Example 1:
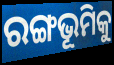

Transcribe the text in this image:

ରଙ୍ଗଭୂମିକୁ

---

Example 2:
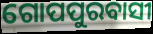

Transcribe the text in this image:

ଗୋପପୁରବାସୀ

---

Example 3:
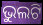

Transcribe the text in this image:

ଭୁଲଟି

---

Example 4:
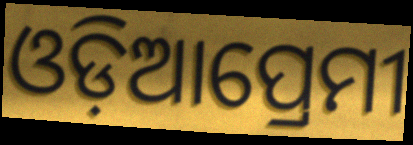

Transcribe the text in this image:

ଓଡ଼ିଆପ୍ରେମୀ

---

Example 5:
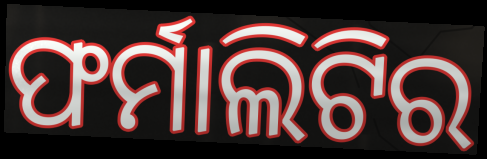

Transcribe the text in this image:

ଫର୍ମାଲିଟିର